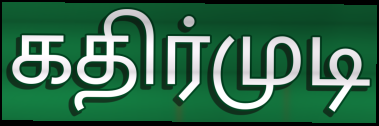
கதிர்முடி